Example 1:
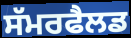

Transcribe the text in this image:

ਸੱਮਰਫੈਲਡ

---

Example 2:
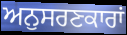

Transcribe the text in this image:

ਅਨੁਸਰਣਕਾਰਾਂ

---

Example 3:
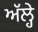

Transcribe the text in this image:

ਅੱਲ੍ਹੇ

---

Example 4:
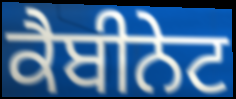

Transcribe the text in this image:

ਕੈਬੀਨੇਟ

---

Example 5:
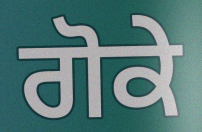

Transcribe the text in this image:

ਗੋਕੇ